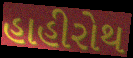
હાહીરોથ